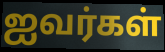
ஐவர்கள்